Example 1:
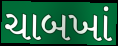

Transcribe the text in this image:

ચાબખાં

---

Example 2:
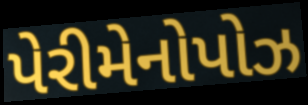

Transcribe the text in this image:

પેરીમેનોપોઝ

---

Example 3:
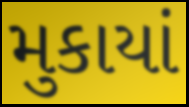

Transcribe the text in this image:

મુકાયાં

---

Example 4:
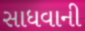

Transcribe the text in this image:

સાધવાની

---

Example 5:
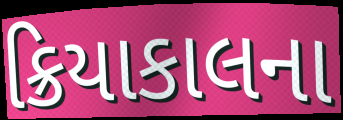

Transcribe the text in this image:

ક્રિયાકાલના